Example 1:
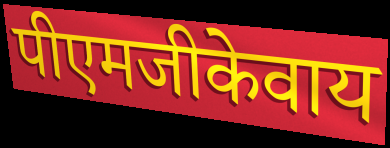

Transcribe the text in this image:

पीएमजीकेवाय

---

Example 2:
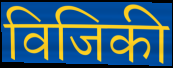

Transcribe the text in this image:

विजिकी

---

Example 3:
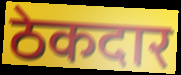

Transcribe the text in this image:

ठेकदार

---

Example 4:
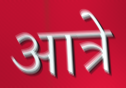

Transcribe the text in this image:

आत्रे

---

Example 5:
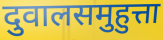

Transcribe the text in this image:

दुवालसमुहुत्ता